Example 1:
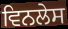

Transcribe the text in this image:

ਵਿਨਲੇਸ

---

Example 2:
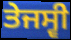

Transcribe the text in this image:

ਤੇਜਸ੍ਵੀ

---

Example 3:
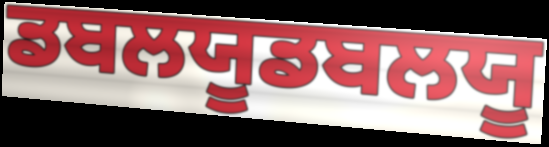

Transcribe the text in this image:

ਡਬਲਯੂਡਬਲਯੂ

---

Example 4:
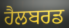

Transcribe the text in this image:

ਹੈਲਬਰਡ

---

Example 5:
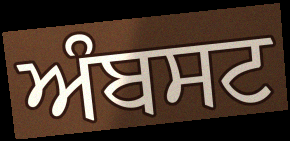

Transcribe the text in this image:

ਅੰਬਸਟ